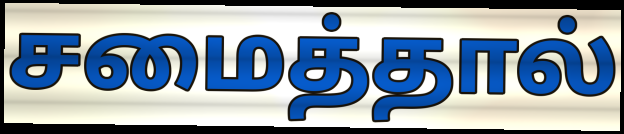
சமைத்தால்